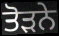
ਤੋੜਨੇ